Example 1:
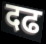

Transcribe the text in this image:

दढ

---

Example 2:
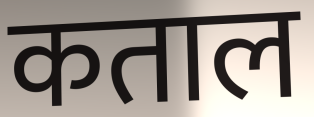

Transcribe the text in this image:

कताल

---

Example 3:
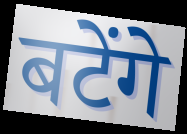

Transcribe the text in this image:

बटेंगे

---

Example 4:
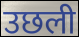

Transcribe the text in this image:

उछली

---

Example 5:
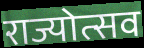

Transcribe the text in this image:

राज्योत्सव